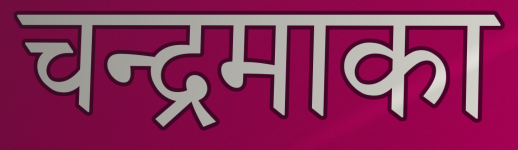
चन्द्रमाका